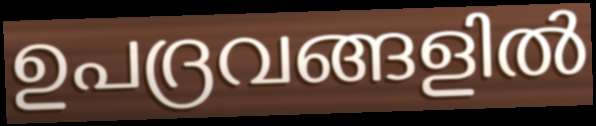
ഉപദ്രവങ്ങളിൽ